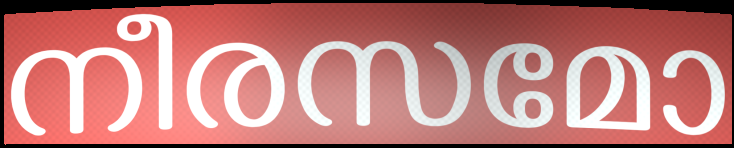
നീരസമോ